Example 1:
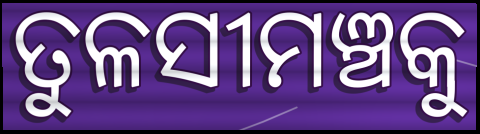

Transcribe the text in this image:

ତୁଳସୀମଞ୍ଚକୁ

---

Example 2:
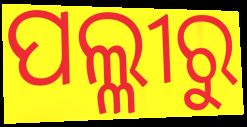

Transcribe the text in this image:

ପଲ୍ଳୀରୁ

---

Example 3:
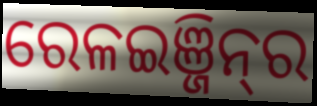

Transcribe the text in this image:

ରେଳଇଞ୍ଜିନ୍‌ର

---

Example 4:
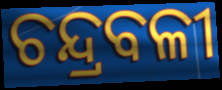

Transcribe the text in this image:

ଚନ୍ଦ୍ରବଳୀ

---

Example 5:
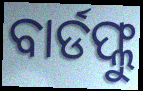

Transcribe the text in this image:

ବାର୍ଡଫ୍ଲୁ